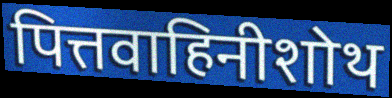
पित्तवाहिनीशोथ